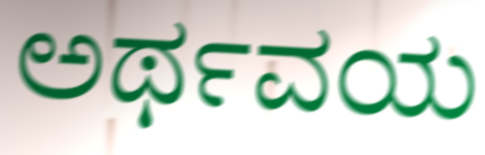
ಅರ್ಥವಯ